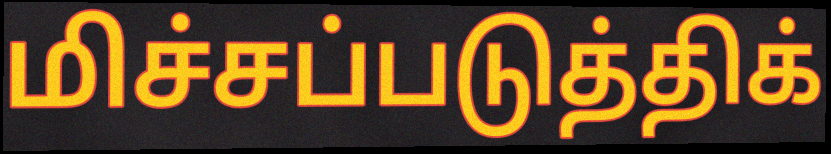
மிச்சப்படுத்திக்